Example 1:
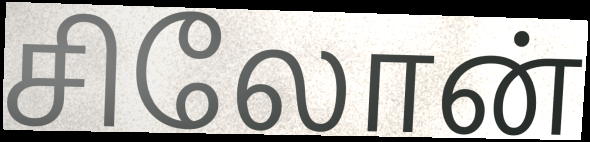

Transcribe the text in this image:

சிலோன்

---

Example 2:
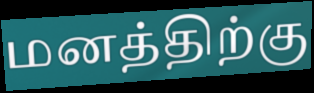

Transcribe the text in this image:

மனத்திற்கு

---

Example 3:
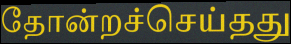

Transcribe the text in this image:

தோன்றச்செய்தது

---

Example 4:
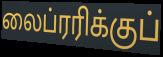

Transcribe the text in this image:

லைப்ரரிக்குப்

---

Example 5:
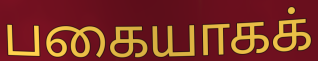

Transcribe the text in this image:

பகையாகக்